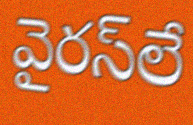
వైరస్‌లే